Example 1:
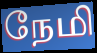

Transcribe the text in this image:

நேமி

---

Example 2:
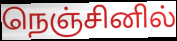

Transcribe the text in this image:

நெஞ்சினில்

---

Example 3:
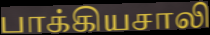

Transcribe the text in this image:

பாக்கியசாலி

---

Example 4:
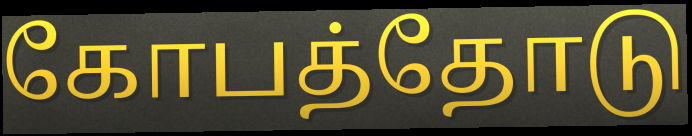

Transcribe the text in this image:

கோபத்தோடு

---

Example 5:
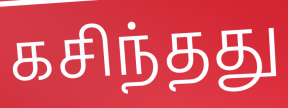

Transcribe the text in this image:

கசிந்தது